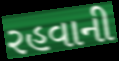
રહવાની